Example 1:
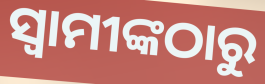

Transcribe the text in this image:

ସ୍ବାମୀଙ୍କଠାରୁ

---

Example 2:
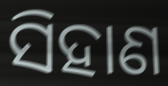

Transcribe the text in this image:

ସିହାଣ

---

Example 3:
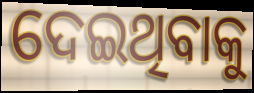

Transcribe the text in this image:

ଦେଇଥିବାକୁ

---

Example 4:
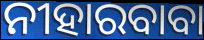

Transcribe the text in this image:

ନୀହାରବାବା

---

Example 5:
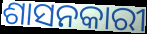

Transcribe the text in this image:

ଶାସନକାରୀ